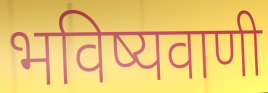
भविष्यवाणी